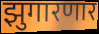
झुगारणार